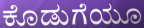
ಕೊಡುಗೆಯೂ